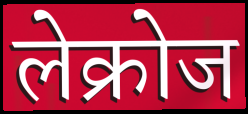
लेक्रोज